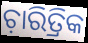
ଚ଼ାରିତ୍ରିକ